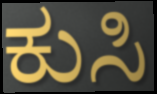
ಕುಸಿ